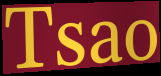
Tsao